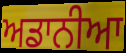
ਅਡਾਨੀਆ